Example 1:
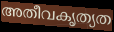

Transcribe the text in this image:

അതീവകൃത്യത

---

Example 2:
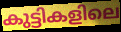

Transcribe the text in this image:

കുട്ടികളിലെ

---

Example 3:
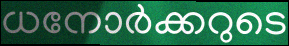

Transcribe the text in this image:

ധനോർക്കറുടെ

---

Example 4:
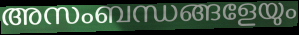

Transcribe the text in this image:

അസംബന്ധങ്ങളേയും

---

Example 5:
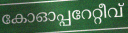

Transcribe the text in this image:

കോഓപ്പറേറ്റീവ്